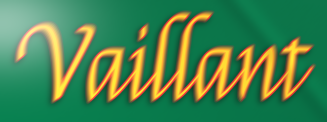
Vaillant